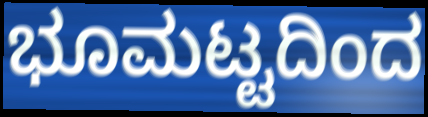
ಭೂಮಟ್ಟದಿಂದ